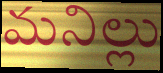
మనిల్లు